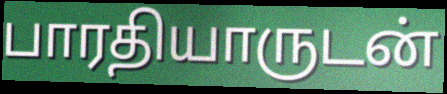
பாரதியாருடன்